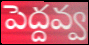
పెద్దవ్వ